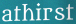
athirst